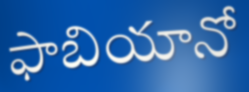
ఫాబియానో